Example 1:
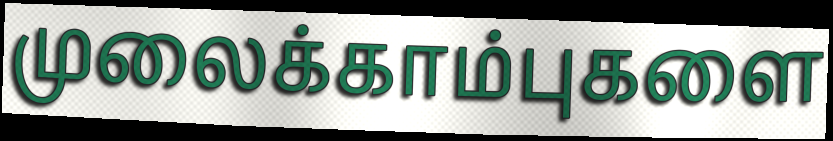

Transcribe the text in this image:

முலைக்காம்புகளை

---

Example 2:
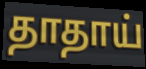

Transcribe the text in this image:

தாதாய்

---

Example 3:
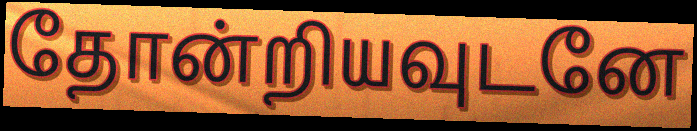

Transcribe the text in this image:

தோன்றியவுடனே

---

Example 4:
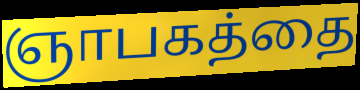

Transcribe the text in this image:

ஞாபகத்தை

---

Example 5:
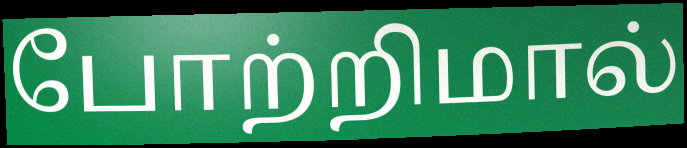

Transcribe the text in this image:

போற்றிமால்